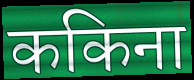
ककिना